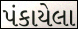
પંકાયેલા